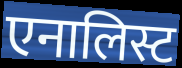
एनालिस्ट